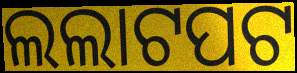
ଲଲାଟପଟ